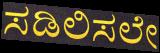
ಸಡಿಲಿಸಲೇ